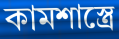
কামশাস্ত্রে